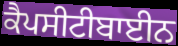
ਕੈਪਸੀਟੀਬਾਈਨ